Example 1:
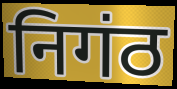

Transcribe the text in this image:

निगंठ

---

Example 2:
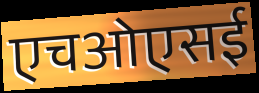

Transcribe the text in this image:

एचओएसई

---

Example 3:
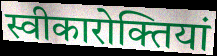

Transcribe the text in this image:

स्वीकारोक्तियां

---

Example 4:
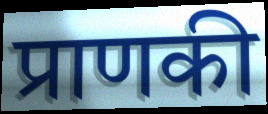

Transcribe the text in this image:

प्राणकी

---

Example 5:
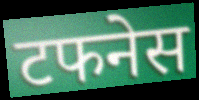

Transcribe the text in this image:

टफनेस